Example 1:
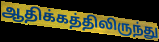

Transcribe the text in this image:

ஆதிக்கத்திலிருந்து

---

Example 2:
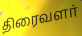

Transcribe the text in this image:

திரைவளர்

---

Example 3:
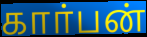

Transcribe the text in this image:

கார்பன்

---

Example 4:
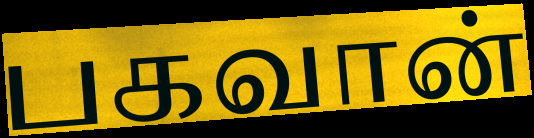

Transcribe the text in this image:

பகவான்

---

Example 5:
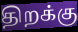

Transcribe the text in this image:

திறக்கு